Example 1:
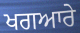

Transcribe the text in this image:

ਖਗਆਰੇ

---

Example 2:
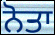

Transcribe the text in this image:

ਨੋਤਾ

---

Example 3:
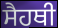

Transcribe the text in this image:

ਸੈਹਥੀ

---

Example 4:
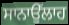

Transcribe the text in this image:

ਸਾਨਾਉੱਲਾਹ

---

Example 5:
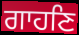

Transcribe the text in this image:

ਗਾਹਣਿ